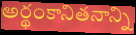
అర్థంకానితనాన్ని